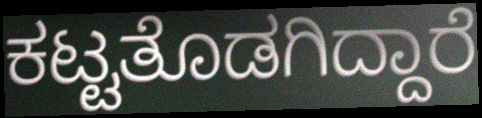
ಕಟ್ಟತೊಡಗಿದ್ದಾರೆ